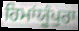
ਹਿਮਾਂਯੂੰਪੁਰਾ